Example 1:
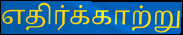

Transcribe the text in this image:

எதிர்க்காற்று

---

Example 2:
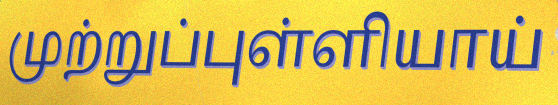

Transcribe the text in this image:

முற்றுப்புள்ளியாய்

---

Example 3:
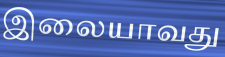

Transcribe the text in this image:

இலையாவது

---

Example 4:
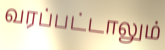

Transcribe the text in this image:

வரப்பட்டாலும்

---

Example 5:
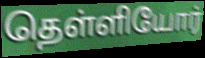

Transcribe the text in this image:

தெள்ளியோர்